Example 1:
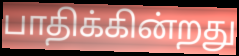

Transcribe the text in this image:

பாதிக்கின்றது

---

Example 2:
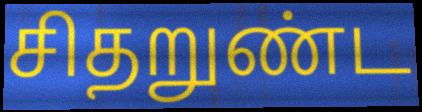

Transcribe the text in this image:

சிதறுண்ட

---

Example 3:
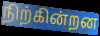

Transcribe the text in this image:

நிற்கின்றன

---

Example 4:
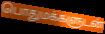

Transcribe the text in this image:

பொதுமக்களுடன்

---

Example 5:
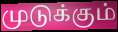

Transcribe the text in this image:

முடுக்கும்